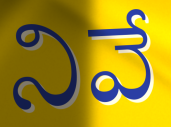
నివే